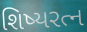
શિષ્યરત્ન